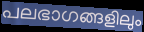
പലഭാഗങ്ങളിലും